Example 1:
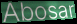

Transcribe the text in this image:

Abosar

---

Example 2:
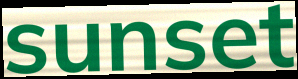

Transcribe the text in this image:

sunset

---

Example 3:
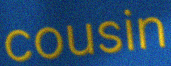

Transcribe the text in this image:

cousin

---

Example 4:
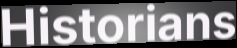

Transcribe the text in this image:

Historians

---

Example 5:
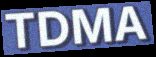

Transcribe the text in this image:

TDMA